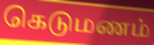
கெடுமணம்